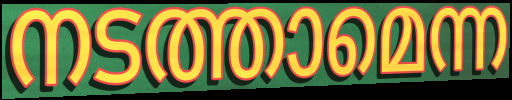
നടത്താമെന്ന